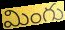
మింగు